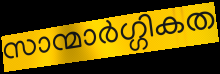
സാന്മാർഗ്ഗികത